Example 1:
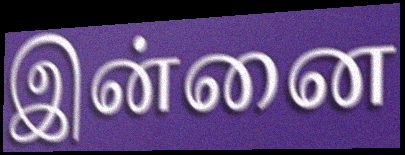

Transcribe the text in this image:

இன்னை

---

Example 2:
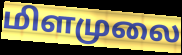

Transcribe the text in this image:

மிளமுலை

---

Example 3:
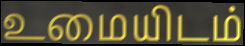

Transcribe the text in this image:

உமையிடம்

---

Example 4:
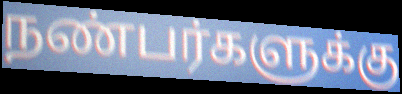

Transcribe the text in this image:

நண்பர்களுக்கு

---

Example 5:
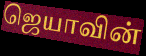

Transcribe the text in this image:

ஜெயாவின்